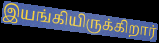
இயங்கியிருக்கிறார்